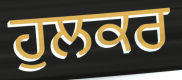
ਹੁਲਕਰ